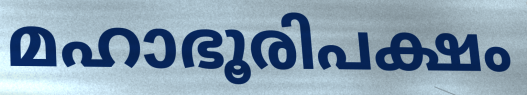
മഹാഭൂരിപക്ഷം